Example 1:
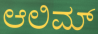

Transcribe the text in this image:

ಆಲಿಮ್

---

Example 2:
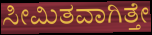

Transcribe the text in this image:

ಸೀಮಿತವಾಗಿತ್ತೇ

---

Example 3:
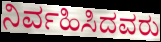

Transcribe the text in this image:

ನಿರ್ವಹಿಸಿದವರು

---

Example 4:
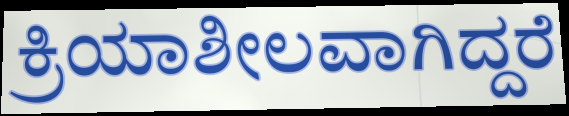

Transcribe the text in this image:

ಕ್ರಿಯಾಶೀಲವಾಗಿದ್ದರೆ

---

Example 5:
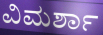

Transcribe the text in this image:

ವಿಮರ್ಶಾ